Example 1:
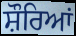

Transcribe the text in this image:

ਸ਼ੌਰਿਆਂ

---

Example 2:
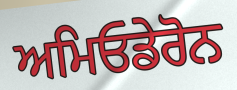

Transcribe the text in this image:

ਅਮਿਓਡੇਰੋਨ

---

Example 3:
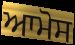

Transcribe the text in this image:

ਆਮੋਸ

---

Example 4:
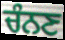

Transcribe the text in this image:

ਚੰਨਣ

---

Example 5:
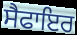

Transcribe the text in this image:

ਸੈਫਾਇਰ